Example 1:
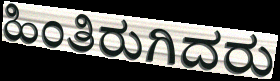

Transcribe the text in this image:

ಹಿಂತಿರುಗಿದರು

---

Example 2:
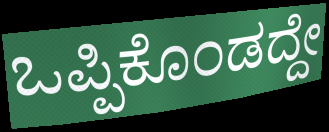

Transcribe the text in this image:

ಒಪ್ಪಿಕೊಂಡದ್ದೇ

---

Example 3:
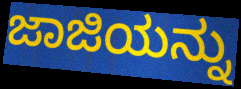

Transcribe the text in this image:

ಜಾಜಿಯನ್ನು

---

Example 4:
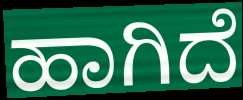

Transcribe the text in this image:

ಹಾಗಿದೆ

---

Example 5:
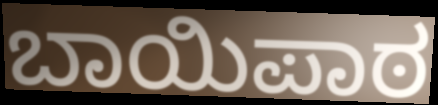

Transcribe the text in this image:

ಬಾಯಿಪಾಠ